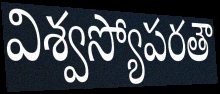
విశ్వస్యోపరతౌ